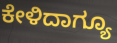
ಕೇಳಿದಾಗ್ಯೂ